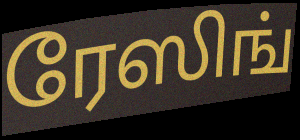
ரேஸிங்